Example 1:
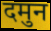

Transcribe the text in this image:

दमुन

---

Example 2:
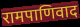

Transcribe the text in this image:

रामपाणिवाद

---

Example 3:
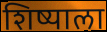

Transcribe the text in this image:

शिष्याला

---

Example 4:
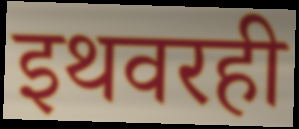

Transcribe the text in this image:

इथवरही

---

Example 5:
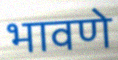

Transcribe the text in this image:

भावणे